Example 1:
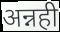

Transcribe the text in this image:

अन्नही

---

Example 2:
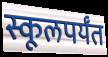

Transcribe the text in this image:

स्कूलपर्यंत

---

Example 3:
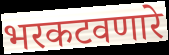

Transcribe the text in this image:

भरकटवणारे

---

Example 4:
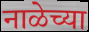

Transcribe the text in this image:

नाळेच्या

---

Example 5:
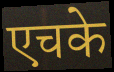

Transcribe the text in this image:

एचके